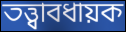
তত্ত্বাবধায়ক